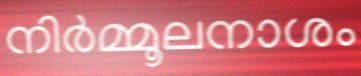
നിർമ്മൂലനാശം